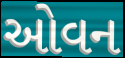
ઓવન